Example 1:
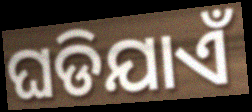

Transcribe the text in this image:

ଘଡିଯାଏଁ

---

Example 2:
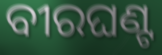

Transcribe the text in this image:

ବୀରଘଣ୍ଟ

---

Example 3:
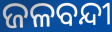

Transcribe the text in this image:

ଜଳବନ୍ଦୀ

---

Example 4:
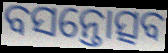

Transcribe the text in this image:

ବସନ୍ତୋତ୍ସବ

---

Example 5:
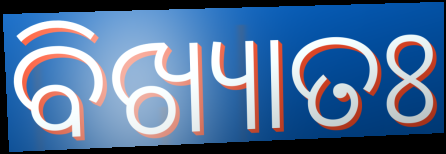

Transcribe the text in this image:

ବିଖ୍ୟାତଃ